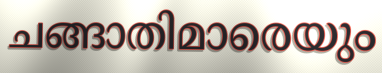
ചങ്ങാതിമാരെയും